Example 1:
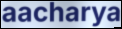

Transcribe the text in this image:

aacharya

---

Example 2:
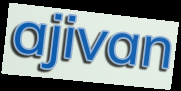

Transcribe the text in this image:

ajivan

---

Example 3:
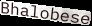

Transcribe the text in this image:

Bhalobese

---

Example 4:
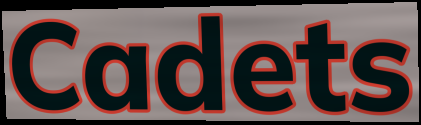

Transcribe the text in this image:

Cadets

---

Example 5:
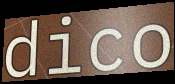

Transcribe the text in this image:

dico